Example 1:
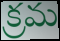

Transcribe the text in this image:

క్రమ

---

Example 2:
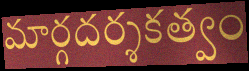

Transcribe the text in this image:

మార్గదర్శకత్వం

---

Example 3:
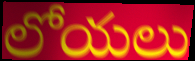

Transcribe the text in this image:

లోయలు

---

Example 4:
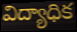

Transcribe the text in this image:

విద్యాధిక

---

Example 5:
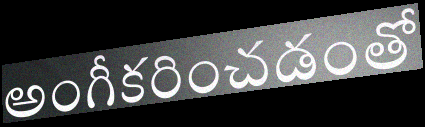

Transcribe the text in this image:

అంగీకరించడంతో